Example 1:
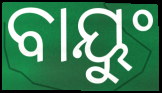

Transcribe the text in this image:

ବାୟୁଂ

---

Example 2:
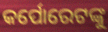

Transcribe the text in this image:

କର୍ପୋରେଟଙ୍କୁ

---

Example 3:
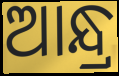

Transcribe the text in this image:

ଆନ୍ଧ୍ର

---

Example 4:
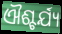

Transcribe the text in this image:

ଐଶ୍ଚର୍ଯ୍ୟ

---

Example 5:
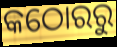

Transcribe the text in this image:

କଠୋରରୁ